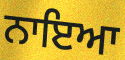
ਨਾਇਆ